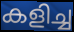
കളിച്ച